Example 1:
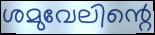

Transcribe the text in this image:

ശമുവേലിന്റെ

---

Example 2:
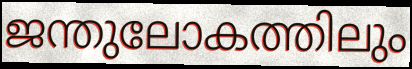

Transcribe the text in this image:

ജന്തുലോകത്തിലും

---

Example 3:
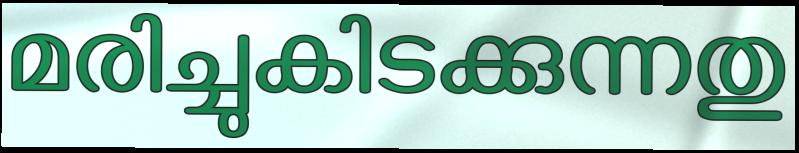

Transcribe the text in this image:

മരിച്ചുകിടക്കുന്നതു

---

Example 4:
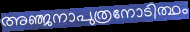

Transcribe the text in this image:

അഞ്ജനാപുത്രനോടിത്ഥം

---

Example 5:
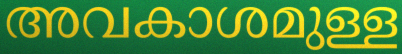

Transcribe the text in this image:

അവകാശമുള്ള